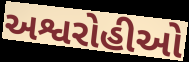
અશ્વરોહીઓ